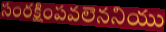
సంరక్షింపవలెననియు